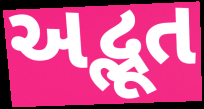
અદ્ભૂત